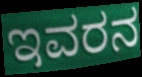
ಇವರನ